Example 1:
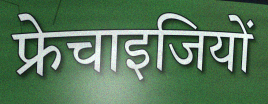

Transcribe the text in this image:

फ्रेचाइजियों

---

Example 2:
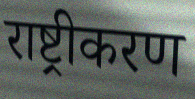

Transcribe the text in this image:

राष्ट्रीकरण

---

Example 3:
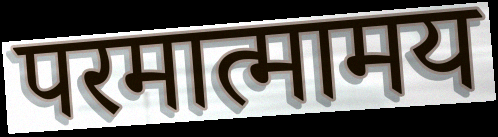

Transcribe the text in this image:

परमात्मामय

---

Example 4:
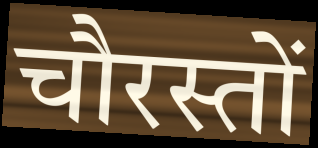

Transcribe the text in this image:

चौरस्तों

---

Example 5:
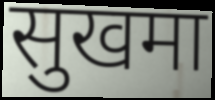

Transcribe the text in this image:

सुखमा